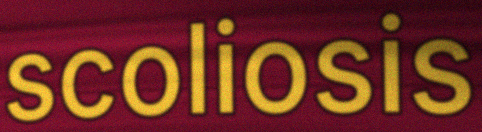
scoliosis